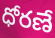
ధోరణే